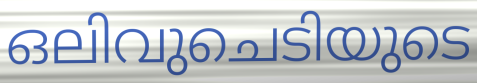
ഒലിവുചെടിയുടെ